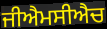
ਜੀਐਮਸੀਐਚ